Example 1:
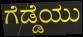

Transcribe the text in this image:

ಗೆಡ್ಡೆಯು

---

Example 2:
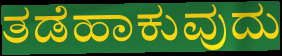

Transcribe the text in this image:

ತಡೆಹಾಕುವುದು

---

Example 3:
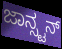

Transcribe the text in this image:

ಜಾನ್ಸ್ಟನ್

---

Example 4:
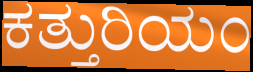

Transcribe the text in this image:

ಕತ್ತುರಿಯಂ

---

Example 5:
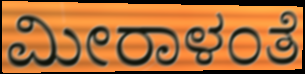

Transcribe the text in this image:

ಮೀರಾಳಂತೆ